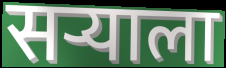
सऱ्याला